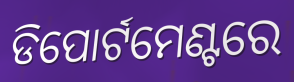
ଡିପୋର୍ଟମେଣ୍ଟରେ